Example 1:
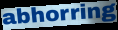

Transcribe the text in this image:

abhorring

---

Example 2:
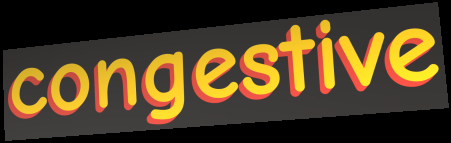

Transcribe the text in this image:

congestive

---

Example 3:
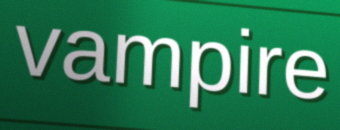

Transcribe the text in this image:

vampire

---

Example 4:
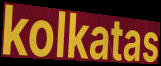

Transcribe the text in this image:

kolkatas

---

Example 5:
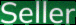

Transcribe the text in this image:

Seller